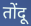
तोंदू